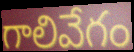
గాలివేగం